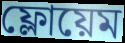
ফ্লোয়েম